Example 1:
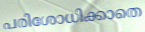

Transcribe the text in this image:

പരിശോധിക്കാതെ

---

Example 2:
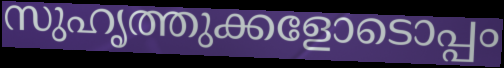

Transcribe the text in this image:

സുഹൃത്തുക്കളോടൊപ്പം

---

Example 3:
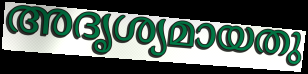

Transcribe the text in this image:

അദൃശ്യമായതു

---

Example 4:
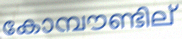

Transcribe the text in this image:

കോമ്പൗണ്ടില്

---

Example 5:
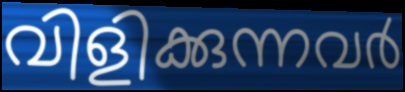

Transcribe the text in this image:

വിളിക്കുന്നവർ